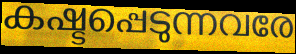
കഷ്ടപ്പെടുന്നവരേ